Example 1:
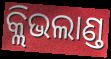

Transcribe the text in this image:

କ୍ଲିଭଲାଣ୍ଡ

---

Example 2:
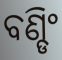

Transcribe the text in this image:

ବଣ୍ଡିଂ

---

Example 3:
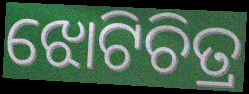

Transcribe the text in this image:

ଝୋଟିଚିତ୍ର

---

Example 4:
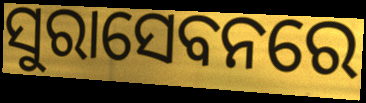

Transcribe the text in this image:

ସୁରାସେବନରେ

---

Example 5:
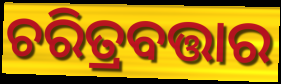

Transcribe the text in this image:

ଚରିତ୍ରବତ୍ତାର